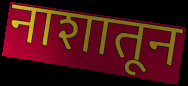
नाशातून